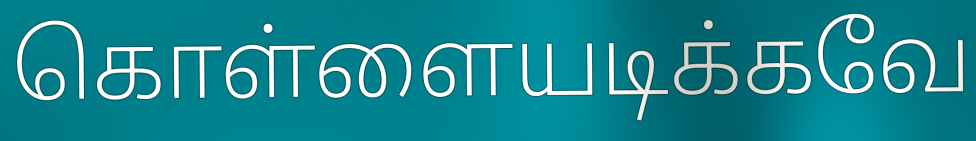
கொள்ளையடிக்கவே